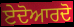
ਏਦੋਆਰਦੋ